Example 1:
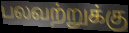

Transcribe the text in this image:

பலவற்றுக்கு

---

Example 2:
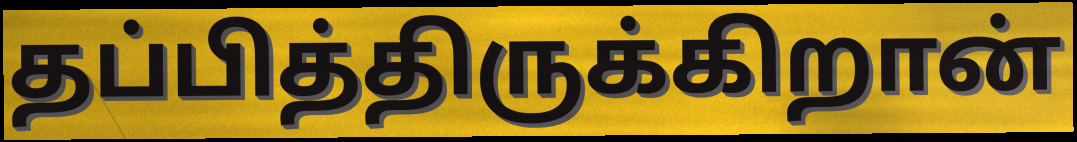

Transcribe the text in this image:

தப்பித்திருக்கிறான்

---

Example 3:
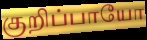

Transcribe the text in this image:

குறிப்பாயோ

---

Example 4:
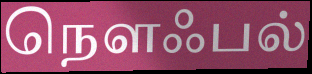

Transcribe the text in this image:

நௌஃபல்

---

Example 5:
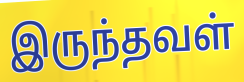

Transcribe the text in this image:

இருந்தவள்